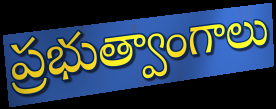
ప్రభుత్వాంగాలు